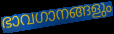
ഭാവഗാനങ്ങളും